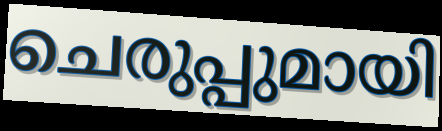
ചെരുപ്പുമായി